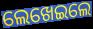
ଲେଖେଇଲେ